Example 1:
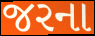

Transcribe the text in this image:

જરના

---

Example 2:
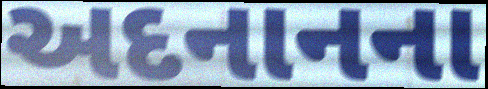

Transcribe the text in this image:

અદનાનના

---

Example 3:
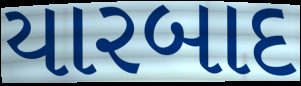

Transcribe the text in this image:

યારબાદ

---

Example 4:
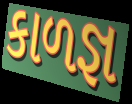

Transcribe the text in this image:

કાળજ્ઞ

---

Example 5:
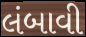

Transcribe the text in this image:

લંબાવી